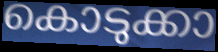
കൊടുക്കാ